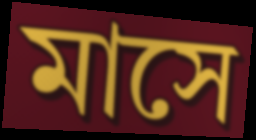
মাসে